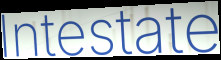
Intestate